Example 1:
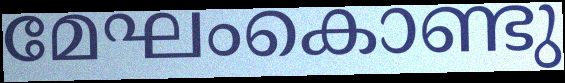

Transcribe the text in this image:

മേഘംകൊണ്ടു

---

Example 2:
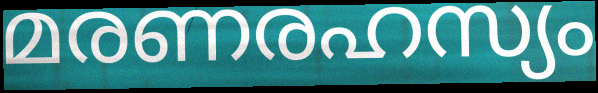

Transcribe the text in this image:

മരണരഹസ്യം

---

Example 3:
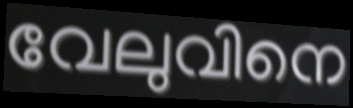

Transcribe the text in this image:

വേലുവിനെ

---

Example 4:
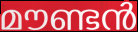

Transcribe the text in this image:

മൗണ്ടൻ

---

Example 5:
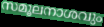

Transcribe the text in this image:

സമൂലനാശവും